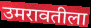
उमरावतीला